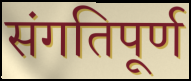
संगतिपूर्ण